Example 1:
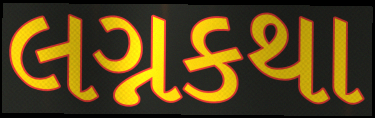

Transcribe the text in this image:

લગ્નકથા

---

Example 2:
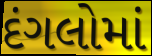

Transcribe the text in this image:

દંગલોમાં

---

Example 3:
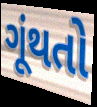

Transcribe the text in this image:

ગૂંથતો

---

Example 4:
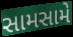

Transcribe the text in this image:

સામસામે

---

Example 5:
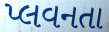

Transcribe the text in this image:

પ્લવનતા